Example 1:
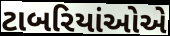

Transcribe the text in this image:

ટાબરિયાંઓએ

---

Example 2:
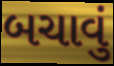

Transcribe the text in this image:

બચાવું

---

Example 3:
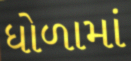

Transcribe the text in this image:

ધોળામાં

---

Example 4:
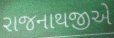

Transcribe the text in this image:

રાજનાથજીએ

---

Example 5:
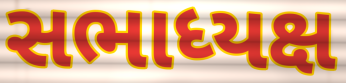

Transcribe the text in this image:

સભાધ્યક્ષ